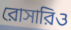
রোসারিও